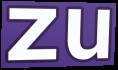
zu